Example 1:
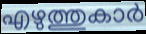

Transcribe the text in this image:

എഴുത്തുകാർ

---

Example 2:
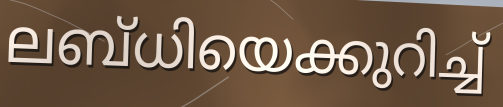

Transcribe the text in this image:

ലബ്ധിയെക്കുറിച്ച്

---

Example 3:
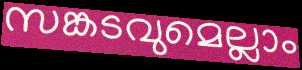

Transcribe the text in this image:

സങ്കടവുമെല്ലാം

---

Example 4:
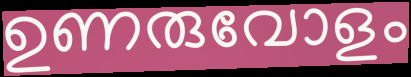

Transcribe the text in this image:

ഉണരുവോളം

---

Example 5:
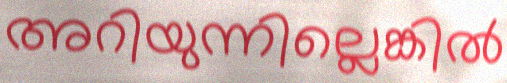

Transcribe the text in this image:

അറിയുന്നില്ലെങ്കിൽ